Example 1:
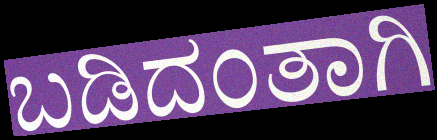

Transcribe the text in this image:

ಬಡಿದಂತಾಗಿ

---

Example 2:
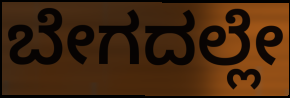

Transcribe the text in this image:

ಬೇಗದಲ್ಲೇ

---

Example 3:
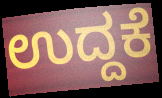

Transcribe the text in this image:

ಉದ್ದಕೆ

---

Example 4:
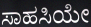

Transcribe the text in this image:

ಸಾಹಸಿಯೇ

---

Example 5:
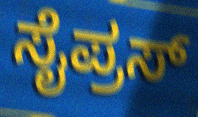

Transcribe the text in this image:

ಸೈಪ್ರಸ್